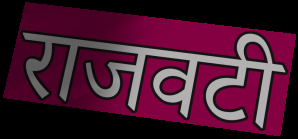
राजवटी